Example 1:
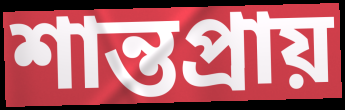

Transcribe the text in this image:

শান্তপ্রায়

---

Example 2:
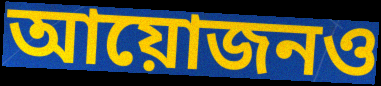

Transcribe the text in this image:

আয়োজনও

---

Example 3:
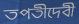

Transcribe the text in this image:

তপতীদেবী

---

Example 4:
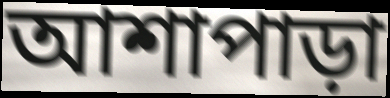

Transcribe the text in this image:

আশাপাড়া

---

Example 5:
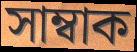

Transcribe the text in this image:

সাম্বাক